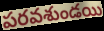
పరవశుండయి